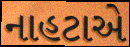
નાહટાએ